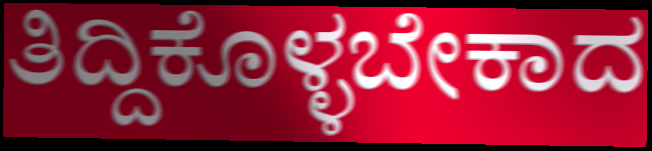
ತಿದ್ದಿಕೊಳ್ಳಬೇಕಾದ